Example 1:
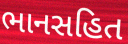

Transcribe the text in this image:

ભાનસહિત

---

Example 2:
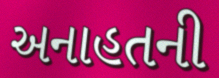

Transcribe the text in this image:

અનાહતની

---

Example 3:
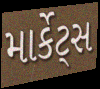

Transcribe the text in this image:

માર્કેટ્સ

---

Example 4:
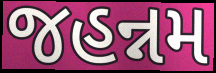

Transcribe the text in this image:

જહન્નમ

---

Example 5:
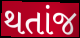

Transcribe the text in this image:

થતાંજ